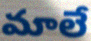
మాలే